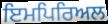
ਇਮਪਿਰਿਅਲ